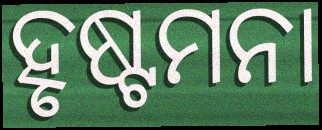
ହୃଷ୍ଟମନା